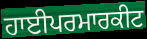
ਹਾਈਪਰਮਾਰਕੀਟ